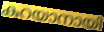
കുറയാനായി